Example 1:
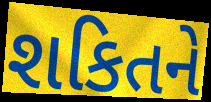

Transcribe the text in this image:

શકિતને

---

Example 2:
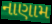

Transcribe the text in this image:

નાણામ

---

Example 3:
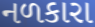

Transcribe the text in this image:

નળકારા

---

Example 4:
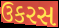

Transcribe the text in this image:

ઉકરસ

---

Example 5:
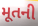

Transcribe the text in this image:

મૂતની